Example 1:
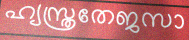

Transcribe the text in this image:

ഹ്യസ്ത്രതേജസാ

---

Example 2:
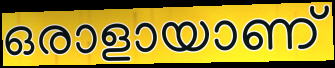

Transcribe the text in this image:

ഒരാളായാണ്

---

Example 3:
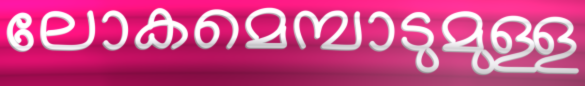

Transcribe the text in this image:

ലോകമെമ്പാടുമുള്ള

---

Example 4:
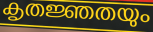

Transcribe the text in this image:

കൃതജ്ഞതയും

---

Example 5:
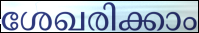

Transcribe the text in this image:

ശേഖരിക്കാം